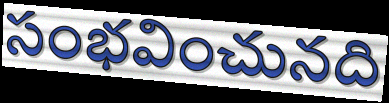
సంభవించునది